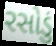
રસોડું